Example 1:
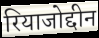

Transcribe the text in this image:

रियाजोद्दीन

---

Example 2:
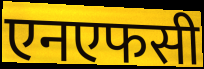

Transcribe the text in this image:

एनएफसी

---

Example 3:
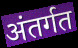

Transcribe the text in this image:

अंतर्गत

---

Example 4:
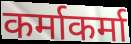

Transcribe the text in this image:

कर्माकर्मा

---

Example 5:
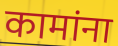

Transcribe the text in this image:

कामांना